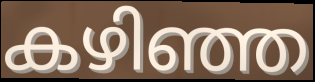
കഴിഞ്ഞ